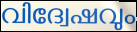
വിദ്വേഷവും